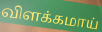
விளக்கமாய்